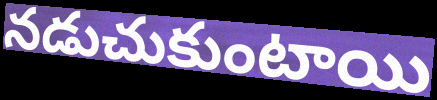
నడుచుకుంటాయి